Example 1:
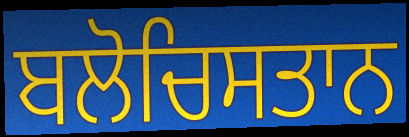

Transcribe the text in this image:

ਬਲੋਚਿਸਤਾਨ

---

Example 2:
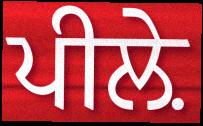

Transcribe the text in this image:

ਪੀਲ਼ੇ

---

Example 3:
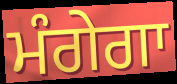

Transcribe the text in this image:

ਮੰਗੇਗਾ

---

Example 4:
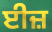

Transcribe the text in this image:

ਈਜ਼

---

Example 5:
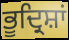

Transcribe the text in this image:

ਭੂਦ੍ਰਿਸ਼ਾਂ